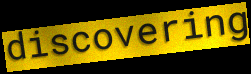
discovering